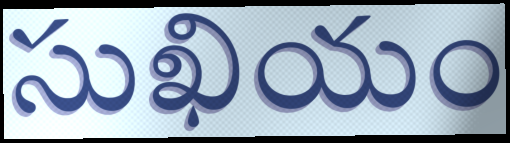
సుఖియం